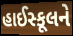
હાઈસ્કૂલને